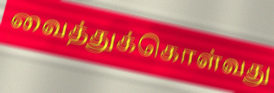
வைத்துக்கொள்வது